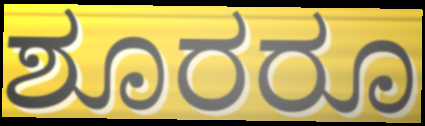
ಶೂರರೂ